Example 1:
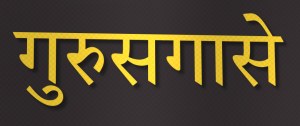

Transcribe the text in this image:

गुरुसगासे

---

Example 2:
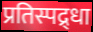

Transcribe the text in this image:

प्रतिस्पद्र्धा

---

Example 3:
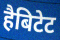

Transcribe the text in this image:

हैबिटेट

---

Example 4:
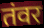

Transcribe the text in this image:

तंवर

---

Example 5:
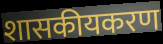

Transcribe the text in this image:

शासकीयकरण